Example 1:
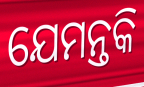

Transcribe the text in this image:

ଯେମନ୍ତକି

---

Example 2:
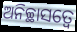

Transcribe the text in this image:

ଅନିଚ୍ଛାସତ୍ୱେ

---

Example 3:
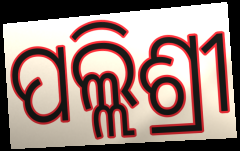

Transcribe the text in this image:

ପଲ୍ଲିଶ୍ରୀ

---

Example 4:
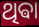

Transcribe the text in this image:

ଥିଵା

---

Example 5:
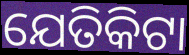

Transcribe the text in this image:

ଯେତିକିଟା